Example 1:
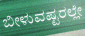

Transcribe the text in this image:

ಬೀಳುವಷ್ಟರಲ್ಲೇ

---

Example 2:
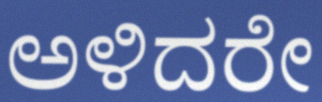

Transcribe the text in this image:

ಅಳಿದರೇ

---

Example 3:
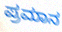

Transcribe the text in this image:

ಪ್ರಮಾನ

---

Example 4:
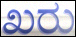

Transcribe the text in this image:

ಖರು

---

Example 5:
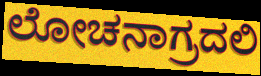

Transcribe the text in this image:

ಲೋಚನಾಗ್ರದಲಿ